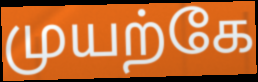
முயற்கே